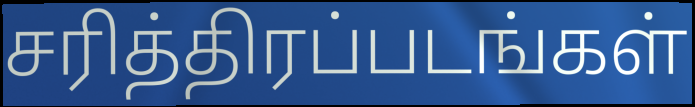
சரித்திரப்படங்கள்